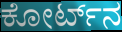
ಕೋರ್ಟ್‌ನ